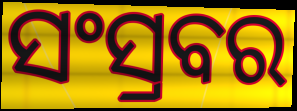
ସଂସ୍ରବର